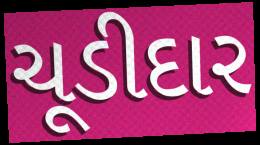
ચૂડીદાર